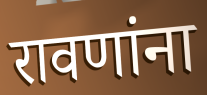
रावणांना